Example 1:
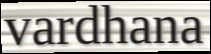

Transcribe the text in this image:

vardhana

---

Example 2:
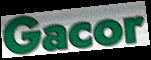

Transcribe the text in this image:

Gacor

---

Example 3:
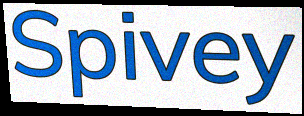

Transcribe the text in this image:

Spivey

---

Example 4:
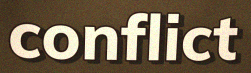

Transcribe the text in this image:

conflict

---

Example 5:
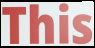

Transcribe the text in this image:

This